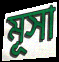
মূসা